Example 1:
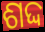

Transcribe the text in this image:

ଶଦ୍ଦ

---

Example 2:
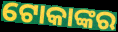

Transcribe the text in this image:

ଟୋକାଙ୍କର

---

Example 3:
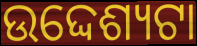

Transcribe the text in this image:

ଉଦ୍ଦେଶ୍ୟଟା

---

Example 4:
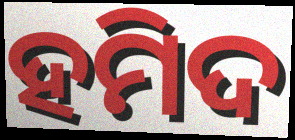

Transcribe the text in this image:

ହମିଦ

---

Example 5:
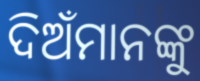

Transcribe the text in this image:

ଦିଅଁମାନଙ୍କୁ